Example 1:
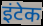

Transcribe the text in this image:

इंटेक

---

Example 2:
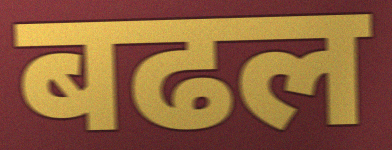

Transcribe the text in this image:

बढल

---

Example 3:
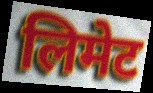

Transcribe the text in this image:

लिमेट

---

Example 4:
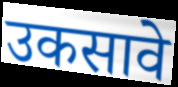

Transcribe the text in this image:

उकसावे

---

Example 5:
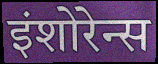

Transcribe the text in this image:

इंशोरेन्स